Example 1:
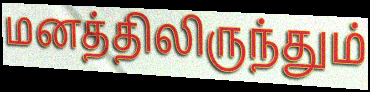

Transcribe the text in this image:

மனத்திலிருந்தும்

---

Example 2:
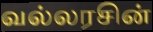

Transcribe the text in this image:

வல்லரசின்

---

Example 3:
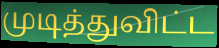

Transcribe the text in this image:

முடித்துவிட்ட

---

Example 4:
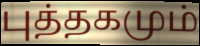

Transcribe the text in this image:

புத்தகமும்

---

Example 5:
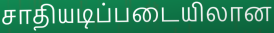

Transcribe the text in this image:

சாதியடிப்படையிலான